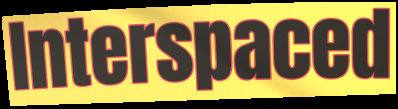
Interspaced